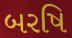
બરષિ